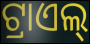
ଟ୍ରାଏଲ୍